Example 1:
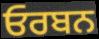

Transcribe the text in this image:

ਓਰਬਨ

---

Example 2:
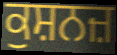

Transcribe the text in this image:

ਕੁਸ਼ਨਜ਼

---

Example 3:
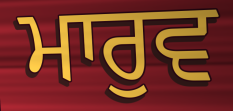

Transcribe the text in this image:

ਮਾਰੁਵ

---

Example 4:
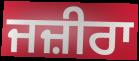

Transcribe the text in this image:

ਜਜ਼ੀਰਾ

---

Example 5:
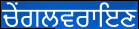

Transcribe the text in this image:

ਚੇਂਗਲਵਰਾਇਣ